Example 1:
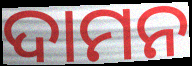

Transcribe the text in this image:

ଦାମନ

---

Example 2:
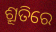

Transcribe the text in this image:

ଶ୍ରୂତିରେ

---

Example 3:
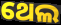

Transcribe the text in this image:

ଥେଲ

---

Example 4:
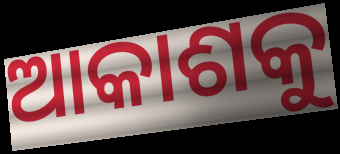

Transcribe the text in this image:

ଆକାଶକୁ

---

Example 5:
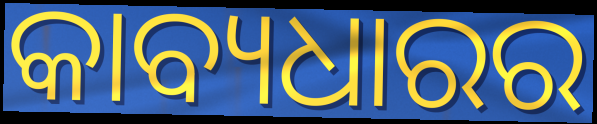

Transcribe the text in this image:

କାବ୍ୟଧାରର